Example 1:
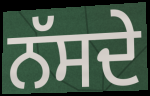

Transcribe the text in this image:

ਨੱਸਦੇ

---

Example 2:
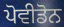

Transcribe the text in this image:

ਪੋਵੀਡੋਨ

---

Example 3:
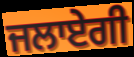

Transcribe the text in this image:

ਜਲਾਏਗੀ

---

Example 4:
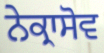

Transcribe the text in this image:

ਨੇਕ੍ਰਾਸੋਵ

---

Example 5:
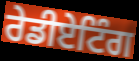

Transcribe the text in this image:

ਰੇਡੀਏਟਿੰਗ